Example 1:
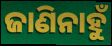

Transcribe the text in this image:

ଜାଣିନାହୁଁ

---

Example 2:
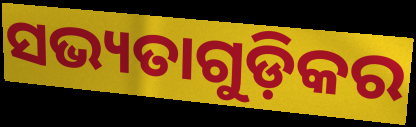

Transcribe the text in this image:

ସଭ୍ୟତାଗୁଡ଼ିକର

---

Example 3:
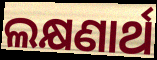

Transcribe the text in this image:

ଲକ୍ଷଣାର୍ଥ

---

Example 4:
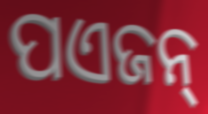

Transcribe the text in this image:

ପଏଜନ୍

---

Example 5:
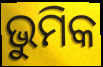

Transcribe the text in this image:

ଭୁମିକ